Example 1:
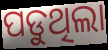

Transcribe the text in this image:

ପଡୁଥିଲା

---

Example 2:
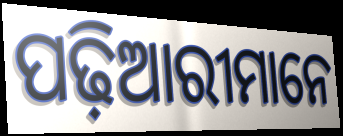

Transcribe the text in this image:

ପଢ଼ିଆରୀମାନେ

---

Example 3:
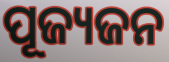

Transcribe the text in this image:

ପୂଜ୍ୟଜନ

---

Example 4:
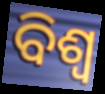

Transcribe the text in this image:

ବିଶ୍ୱ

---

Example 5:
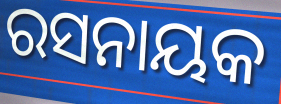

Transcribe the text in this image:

ରସନାୟକ